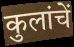
कुलांचें